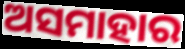
ଅସମାହାର